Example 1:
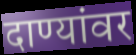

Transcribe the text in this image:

दाण्यांवर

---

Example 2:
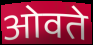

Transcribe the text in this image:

ओवते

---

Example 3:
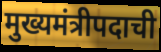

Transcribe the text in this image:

मुख्यमंत्रीपदाची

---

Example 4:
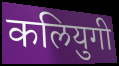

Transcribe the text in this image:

कलियुगी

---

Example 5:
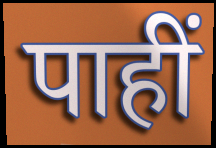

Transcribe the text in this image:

पाहीं